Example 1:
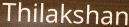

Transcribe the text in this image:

Thilakshan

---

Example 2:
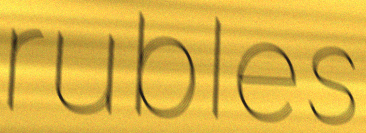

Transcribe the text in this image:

rubles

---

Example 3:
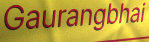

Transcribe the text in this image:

Gaurangbhai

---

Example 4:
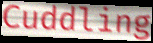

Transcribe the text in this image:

Cuddling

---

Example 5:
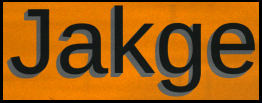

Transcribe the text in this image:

Jakge